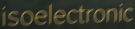
isoelectronic